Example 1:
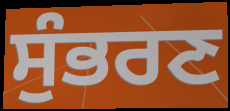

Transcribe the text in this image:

ਸੁੰਭਰਣ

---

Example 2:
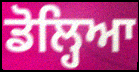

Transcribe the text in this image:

ਡੋਲ੍ਹਿਆ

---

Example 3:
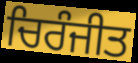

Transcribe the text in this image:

ਚਿਰੰਜੀਤ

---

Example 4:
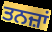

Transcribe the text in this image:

ਤਨਜ਼ਾਂ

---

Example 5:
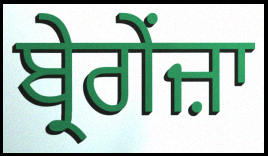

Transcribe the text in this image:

ਬ੍ਰੇਗੇਂਜ਼ਾ